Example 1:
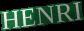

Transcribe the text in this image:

HENRI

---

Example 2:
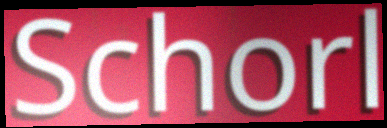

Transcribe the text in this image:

Schorl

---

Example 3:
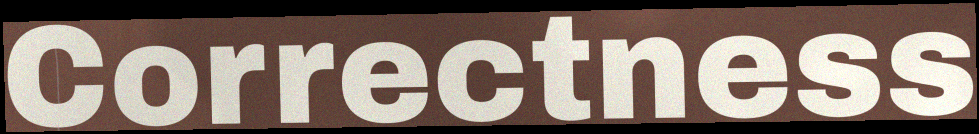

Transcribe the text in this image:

Correctness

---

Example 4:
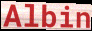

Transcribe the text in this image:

Albin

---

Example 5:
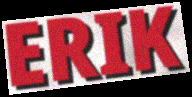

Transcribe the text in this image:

ERIK